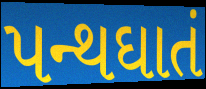
પન્થઘાતં